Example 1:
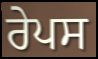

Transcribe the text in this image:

ਰੇਪਸ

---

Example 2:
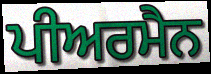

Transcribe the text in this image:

ਪੀਅਰਮੈਨ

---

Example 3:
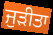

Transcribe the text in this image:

ਜੁੜੀਤਾ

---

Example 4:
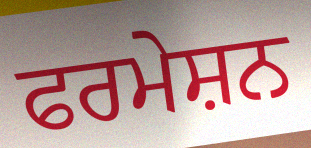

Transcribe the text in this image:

ਫਰਮੇਸ਼ਨ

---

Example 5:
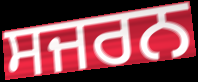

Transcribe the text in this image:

ਸਜਰਨ